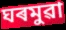
ঘৰমুৱা